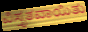
ವಿಸ್ತೃತವಾಯಿತು